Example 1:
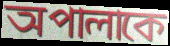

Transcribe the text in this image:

অপালাকে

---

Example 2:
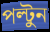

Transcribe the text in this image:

পল্টুন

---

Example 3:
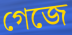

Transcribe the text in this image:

গেজে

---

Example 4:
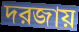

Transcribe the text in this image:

দরজায়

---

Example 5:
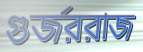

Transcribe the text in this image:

গুর্জররাজ